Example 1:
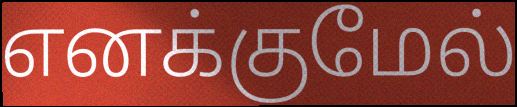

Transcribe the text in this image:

எனக்குமேல்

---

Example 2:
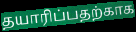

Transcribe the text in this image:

தயாரிப்பதற்காக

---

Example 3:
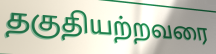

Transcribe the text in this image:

தகுதியற்றவரை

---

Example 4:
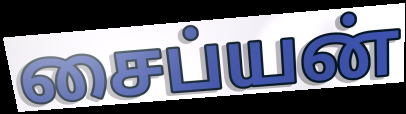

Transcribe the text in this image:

சைப்யன்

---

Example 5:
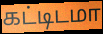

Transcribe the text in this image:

கட்டிடமா